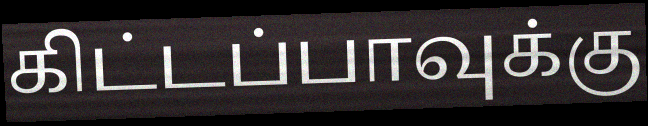
கிட்டப்பாவுக்கு